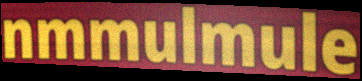
nmmulmule